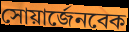
সোয়ার্জেনবেক